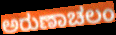
ಅರುಣಾಚಲಂ